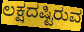
ಲಕ್ಷದಷ್ಟಿರುವ